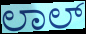
ಲಾಲ್